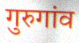
गुरुगांव